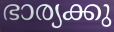
ഭാര്യക്കു